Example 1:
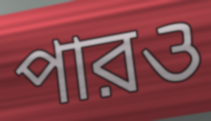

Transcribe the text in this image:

পারও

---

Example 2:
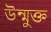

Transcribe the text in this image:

উন্মুক্ত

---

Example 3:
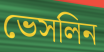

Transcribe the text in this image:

ভেসলিন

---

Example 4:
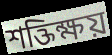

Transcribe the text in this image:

শক্তিক্ষয়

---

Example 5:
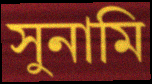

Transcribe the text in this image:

সুনামি